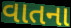
વાતના